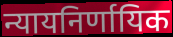
न्यायनिर्णायिक